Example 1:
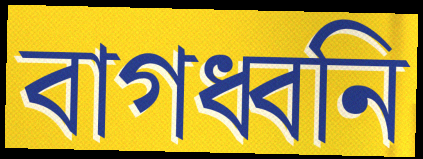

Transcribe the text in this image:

বাগধ্বনি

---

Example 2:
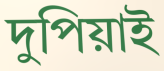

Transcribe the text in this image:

দুপিয়াই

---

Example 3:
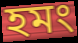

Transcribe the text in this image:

হমং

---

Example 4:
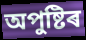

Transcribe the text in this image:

অপুষ্টিৰ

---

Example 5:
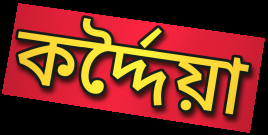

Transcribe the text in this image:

কৰ্দ্দৈয়া